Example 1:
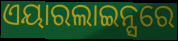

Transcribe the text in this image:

ଏୟାରଲାଇନ୍ସରେ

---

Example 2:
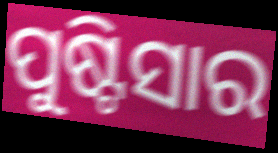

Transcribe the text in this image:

ପୁଷ୍ଟିସାର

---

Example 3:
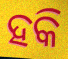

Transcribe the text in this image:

ହକି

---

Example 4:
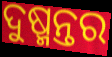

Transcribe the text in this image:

ଦୁଷ୍ମନ୍ତର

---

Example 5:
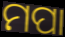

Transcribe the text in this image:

ମପା